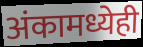
अंकामध्येही